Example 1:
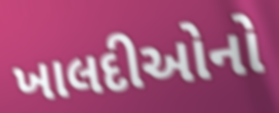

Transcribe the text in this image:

ખાલદીઓનો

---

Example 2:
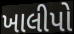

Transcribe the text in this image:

ખાલીપો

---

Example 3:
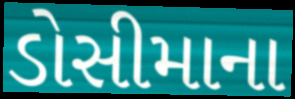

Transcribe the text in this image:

ડોસીમાના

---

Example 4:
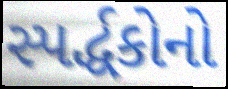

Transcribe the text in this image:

સ્પર્દ્ધકોનો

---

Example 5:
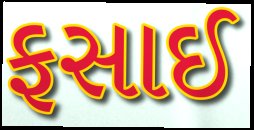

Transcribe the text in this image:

ફસાઈ